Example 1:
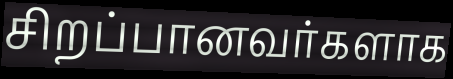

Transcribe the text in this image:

சிறப்பானவர்களாக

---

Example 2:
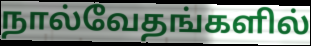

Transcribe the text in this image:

நால்வேதங்களில்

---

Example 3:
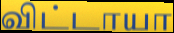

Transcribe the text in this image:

விட்டாயா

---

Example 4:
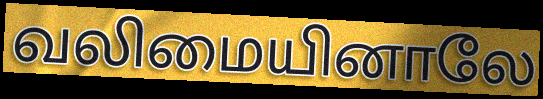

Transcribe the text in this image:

வலிமையினாலே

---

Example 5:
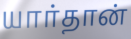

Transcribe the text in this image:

யார்தான்